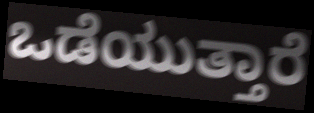
ಒಡೆಯುತ್ತಾರೆ